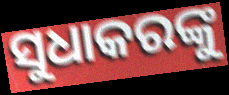
ସୁଧାକରଙ୍କୁ